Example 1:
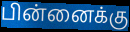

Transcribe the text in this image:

பின்னைக்கு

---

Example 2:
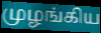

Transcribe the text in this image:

முழங்கிய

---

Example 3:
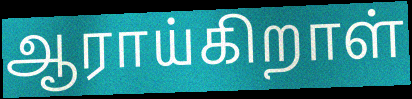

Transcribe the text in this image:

ஆராய்கிறாள்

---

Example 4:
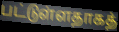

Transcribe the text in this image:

பட்டுள்ளதாகத்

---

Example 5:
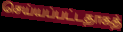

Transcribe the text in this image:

செய்யப்பட்டதாகத்